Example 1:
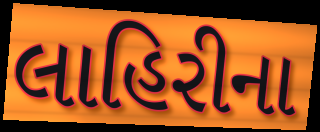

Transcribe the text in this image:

લાહિરીના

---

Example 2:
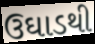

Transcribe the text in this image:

ઉઘાડથી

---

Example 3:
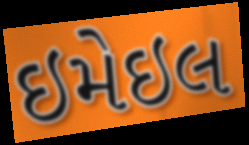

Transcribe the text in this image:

ઇમેઇલ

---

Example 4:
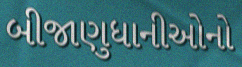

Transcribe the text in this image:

બીજાણુધાનીઓનો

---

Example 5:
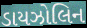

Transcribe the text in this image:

ડાયઝોલિન